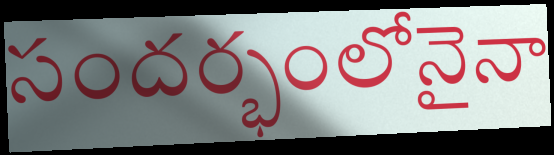
సందర్భంలోనైనా